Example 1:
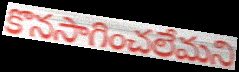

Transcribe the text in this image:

కొనసాగించలేమని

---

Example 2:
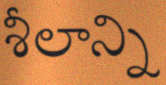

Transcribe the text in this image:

శీలాన్ని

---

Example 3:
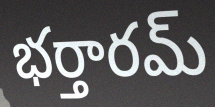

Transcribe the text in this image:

భర్తారమ్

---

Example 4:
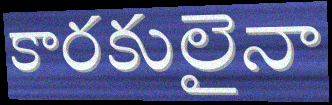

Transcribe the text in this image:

కారకులైనా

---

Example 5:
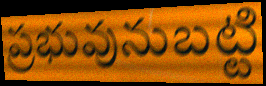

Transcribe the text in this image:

ప్రభువునుబట్టి